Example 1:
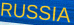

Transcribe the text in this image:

RUSSIA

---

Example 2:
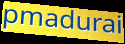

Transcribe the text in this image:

pmadurai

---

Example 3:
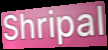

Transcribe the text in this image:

Shripal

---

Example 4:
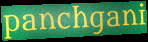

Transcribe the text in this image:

panchgani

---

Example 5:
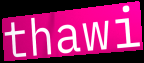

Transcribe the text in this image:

thawi